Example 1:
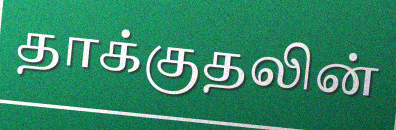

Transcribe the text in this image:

தாக்குதலின்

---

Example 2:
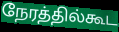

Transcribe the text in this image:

நேரத்தில்கூட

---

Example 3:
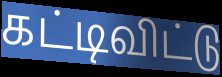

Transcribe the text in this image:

கட்டிவிட்டு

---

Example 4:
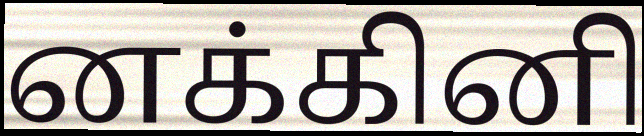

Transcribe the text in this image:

னக்கினி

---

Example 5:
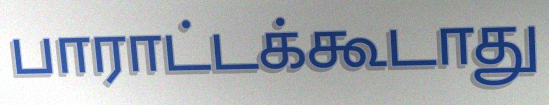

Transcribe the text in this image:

பாராட்டக்கூடாது